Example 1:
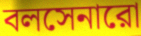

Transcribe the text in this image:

বলসেনারো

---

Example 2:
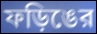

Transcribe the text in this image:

ফড়িঙের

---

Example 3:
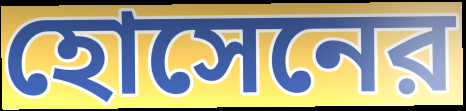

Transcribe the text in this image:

হোসেনের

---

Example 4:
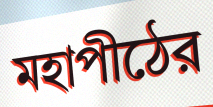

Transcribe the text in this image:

মহাপীঠের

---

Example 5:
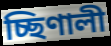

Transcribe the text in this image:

চ্ছিণালী